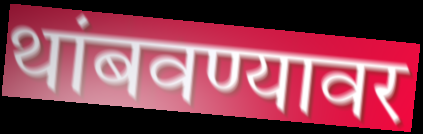
थांबवण्यावर